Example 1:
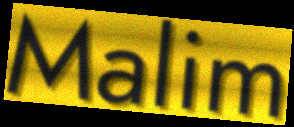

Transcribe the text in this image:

Malim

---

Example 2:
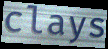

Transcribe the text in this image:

clays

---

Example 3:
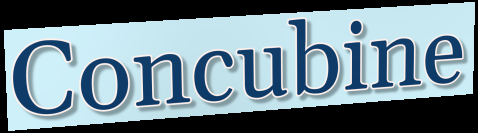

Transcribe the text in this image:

Concubine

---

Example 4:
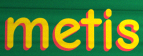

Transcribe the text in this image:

metis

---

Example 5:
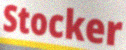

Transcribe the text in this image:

Stocker